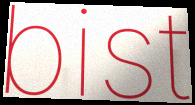
bist